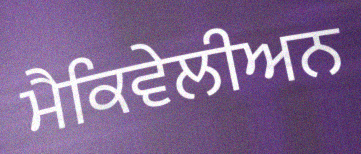
ਮੈਕਿਵੇਲੀਅਨ